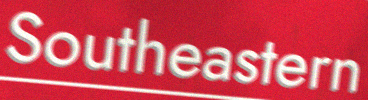
Southeastern